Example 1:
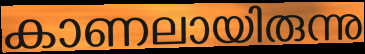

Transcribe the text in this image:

കാണലായിരുന്നു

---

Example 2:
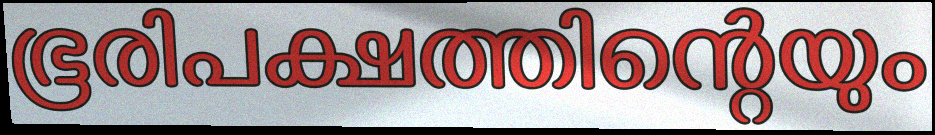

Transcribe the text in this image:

ഭൂരിപക്ഷത്തിന്റെയും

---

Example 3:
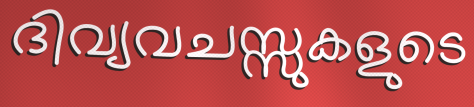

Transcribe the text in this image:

ദിവ്യവചസ്സുകളുടെ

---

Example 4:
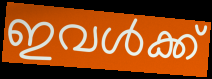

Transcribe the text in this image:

ഇവൾക്ക്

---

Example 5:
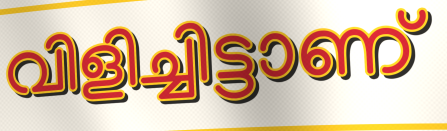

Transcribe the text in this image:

വിളിച്ചിട്ടാണ്